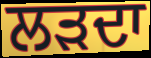
ਲੜਦਾ